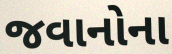
જવાનોના